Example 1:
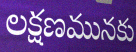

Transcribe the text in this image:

లక్షణమునకు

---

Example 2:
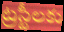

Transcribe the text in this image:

ట్రస్టీలకు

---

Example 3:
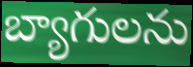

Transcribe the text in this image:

బ్యాగులను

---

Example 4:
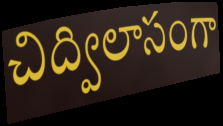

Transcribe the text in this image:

చిద్విలాసంగా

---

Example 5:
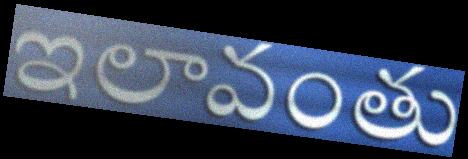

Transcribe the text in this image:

ఇలావంతు